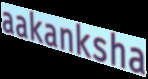
aakanksha